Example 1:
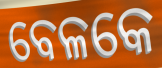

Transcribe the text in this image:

ବେଳକେ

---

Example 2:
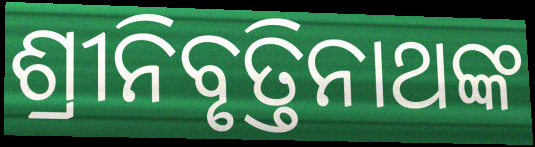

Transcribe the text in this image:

ଶ୍ରୀନିବୃତ୍ତିନାଥଙ୍କ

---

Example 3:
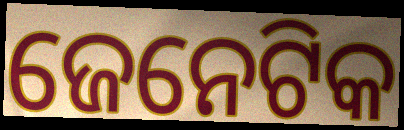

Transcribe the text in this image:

ଜେନେଟିକ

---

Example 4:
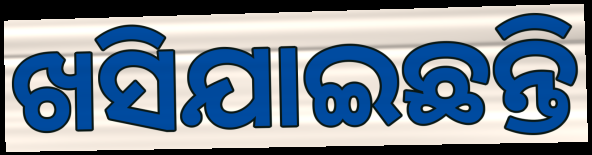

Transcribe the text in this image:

ଖସିଯାଇଛନ୍ତି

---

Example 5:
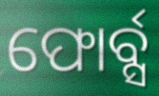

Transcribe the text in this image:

ଫୋର୍ବ୍ସ